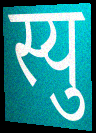
स्यु